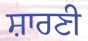
ਸ਼ਾਰਣੀ